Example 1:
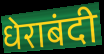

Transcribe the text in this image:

धेराबंदी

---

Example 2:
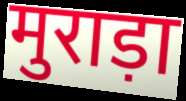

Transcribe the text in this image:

मुराड़ा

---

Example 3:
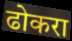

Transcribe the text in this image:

ढोकरा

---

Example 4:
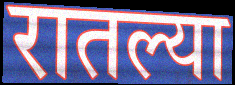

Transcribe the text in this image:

रातल्या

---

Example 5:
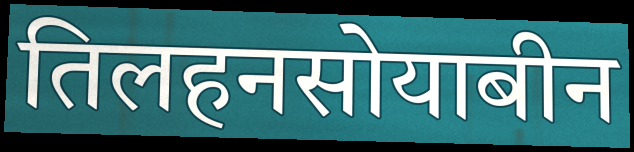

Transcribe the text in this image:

तिलहनसोयाबीन